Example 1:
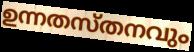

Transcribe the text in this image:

ഉന്നതസ്തനവും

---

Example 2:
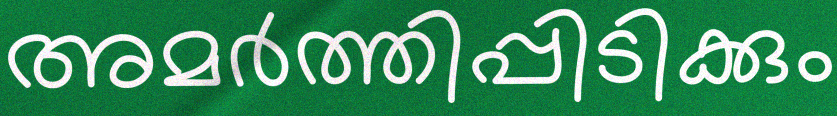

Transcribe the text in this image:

അമർത്തിപ്പിടിക്കും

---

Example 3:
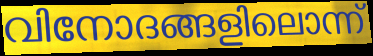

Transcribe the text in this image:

വിനോദങ്ങളിലൊന്ന്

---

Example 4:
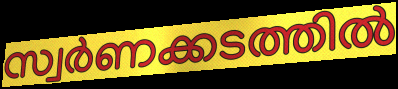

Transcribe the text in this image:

സ്വർണക്കടത്തിൽ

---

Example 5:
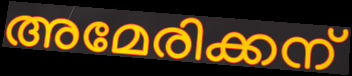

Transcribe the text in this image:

അമേരിക്കന്